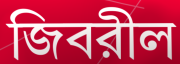
জিবরীল